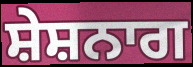
ਸ਼ੇਸ਼ਨਾਗ